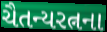
ચૈતન્યરત્નના